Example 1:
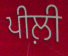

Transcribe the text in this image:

ਪੀਲ਼ੀ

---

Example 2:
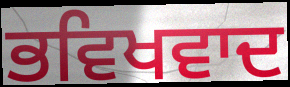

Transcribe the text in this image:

ਭਵਿਖਵਾਦ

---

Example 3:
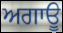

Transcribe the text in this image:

ਅਗਾਊ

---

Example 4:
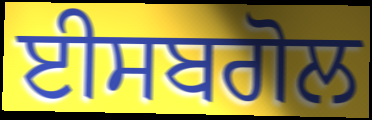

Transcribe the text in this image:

ਈਸਬਗੋਲ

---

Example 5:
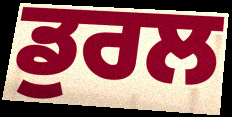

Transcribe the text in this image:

ਡੁਰਲ